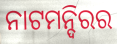
ନାଟମନ୍ଦିରର